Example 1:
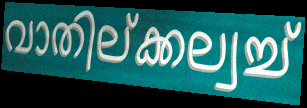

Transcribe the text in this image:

വാതില്ക്കല്വച്ച്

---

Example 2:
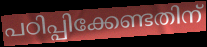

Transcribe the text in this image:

പഠിപ്പിക്കേണ്ടതിന്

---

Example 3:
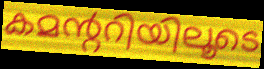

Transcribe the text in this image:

കമന്ററിയിലൂടെ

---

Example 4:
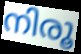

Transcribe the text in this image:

നിരൂ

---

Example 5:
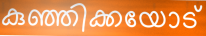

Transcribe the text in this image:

കുഞ്ഞിക്കയോട്